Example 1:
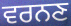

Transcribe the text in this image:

ਵਰਨਣ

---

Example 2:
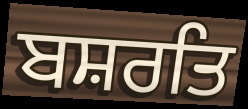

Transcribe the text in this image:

ਬਸ਼ਰਤਿ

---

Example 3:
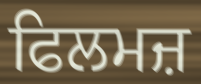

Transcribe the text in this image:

ਫਿਲਮਜ਼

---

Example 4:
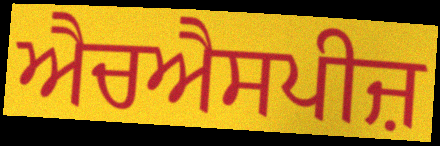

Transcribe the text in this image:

ਐਚਐਸਪੀਜ਼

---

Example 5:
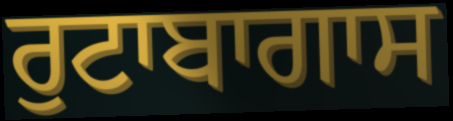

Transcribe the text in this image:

ਰੁਟਾਬਾਗਾਸ